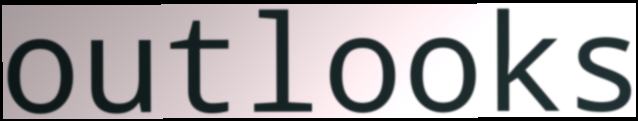
outlooks